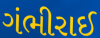
ગંભીરાઈ